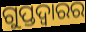
ଗୁପ୍ତଦ୍ୱାରର